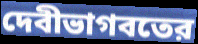
দেবীভাগবতের